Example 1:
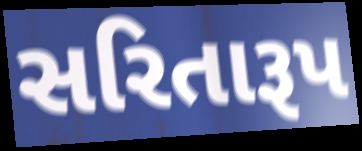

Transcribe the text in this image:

સરિતારૂપ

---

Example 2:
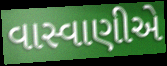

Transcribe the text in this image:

વાસ્વાણીએ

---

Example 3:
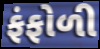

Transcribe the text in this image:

ફંફોળી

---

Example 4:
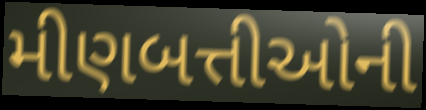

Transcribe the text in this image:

મીણબત્તીઓની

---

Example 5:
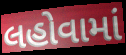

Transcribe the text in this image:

લહોવામાં